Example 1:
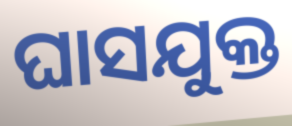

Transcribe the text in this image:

ଘାସଯୁକ୍ତ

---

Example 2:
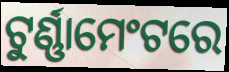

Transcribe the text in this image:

ଟୁର୍ଣ୍ଣାମେଂଟରେ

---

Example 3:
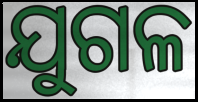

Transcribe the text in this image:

ଯୁଗଳ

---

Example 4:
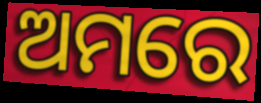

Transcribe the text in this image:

ଅମରେ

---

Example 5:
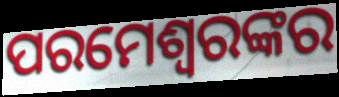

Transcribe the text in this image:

ପରମେଶ୍ଵରଙ୍କର